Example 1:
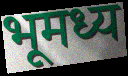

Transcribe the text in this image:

भूमध्य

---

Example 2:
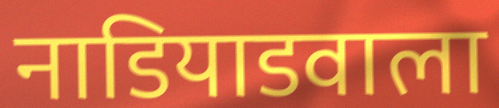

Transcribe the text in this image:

नाडियाडवाला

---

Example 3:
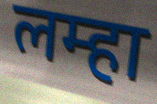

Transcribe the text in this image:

लम्हा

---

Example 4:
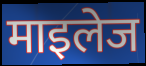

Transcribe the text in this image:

माइलेज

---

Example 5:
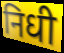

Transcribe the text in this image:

निधी